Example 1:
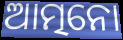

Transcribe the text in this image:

ଆତ୍ମନୋ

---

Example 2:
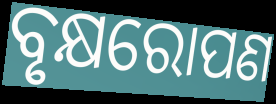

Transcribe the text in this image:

ବୃକ୍ଷରୋପଣ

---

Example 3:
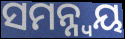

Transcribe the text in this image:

ସମନ୍ନ୍ୱୟ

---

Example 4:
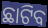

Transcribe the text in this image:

ଛାଟିବ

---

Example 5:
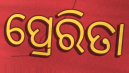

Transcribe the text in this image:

ପ୍ରେରିତା